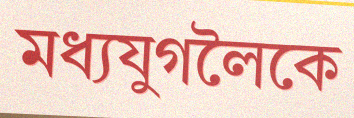
মধ্যযুগলৈকে